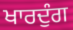
ਖਾਰਦੁੰਗ